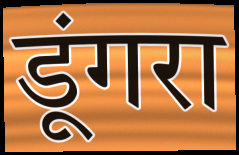
डूंगरा